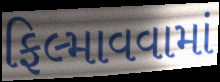
ફિલ્માવવામાં